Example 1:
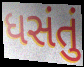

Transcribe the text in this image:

ધસંતું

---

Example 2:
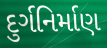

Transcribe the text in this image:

દુર્ગનિર્માણ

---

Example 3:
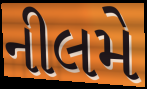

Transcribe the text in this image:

નીલમે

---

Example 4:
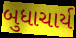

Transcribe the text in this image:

બુધાચાર્ય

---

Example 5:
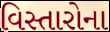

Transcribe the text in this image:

વિસ્તારોના